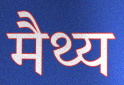
मैथ्य